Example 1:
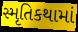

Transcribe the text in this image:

સ્મૃતિકથામાં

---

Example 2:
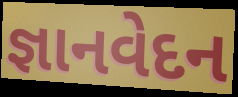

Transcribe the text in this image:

જ્ઞાનવેદન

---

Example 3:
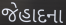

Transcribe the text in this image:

જેહાદના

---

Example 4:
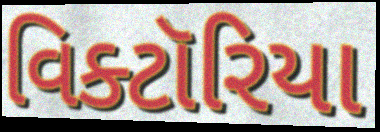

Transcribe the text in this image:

વિક્ટૉરિયા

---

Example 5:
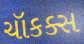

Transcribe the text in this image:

ચૉકક્સ